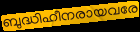
ബുദ്ധിഹീനരായവരേ